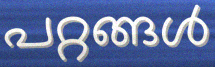
പറ്റങ്ങൾ